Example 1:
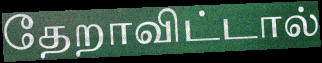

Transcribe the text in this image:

தேறாவிட்டால்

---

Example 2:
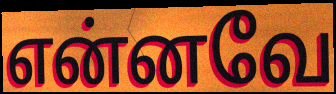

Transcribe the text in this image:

என்னவே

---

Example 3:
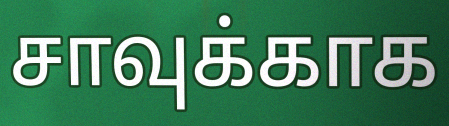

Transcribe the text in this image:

சாவுக்காக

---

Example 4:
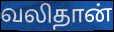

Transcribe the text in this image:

வலிதான்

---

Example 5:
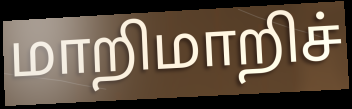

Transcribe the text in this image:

மாறிமாறிச்